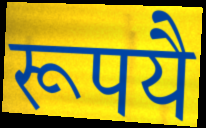
रूपयै